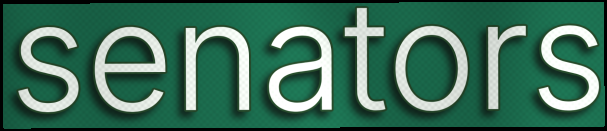
senators